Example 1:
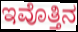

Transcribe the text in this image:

ಇವೊತ್ತಿನ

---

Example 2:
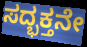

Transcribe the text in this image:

ಸದ್ಭಕ್ತನೇ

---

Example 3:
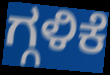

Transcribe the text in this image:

ಗ್ಗಳಿಕೆ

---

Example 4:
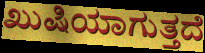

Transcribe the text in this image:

ಖುಷಿಯಾಗುತ್ತದೆ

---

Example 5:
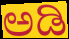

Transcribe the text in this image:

ಅಡಿ